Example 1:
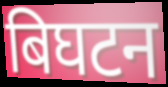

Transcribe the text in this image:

बिघटन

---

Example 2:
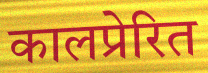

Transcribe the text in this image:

कालप्रेरित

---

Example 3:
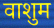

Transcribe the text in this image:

वाशुम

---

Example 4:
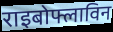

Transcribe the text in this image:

राइबोफ्लाविन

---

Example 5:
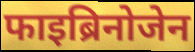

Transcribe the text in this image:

फाइब्रिनोजेन